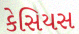
કેસિયસ